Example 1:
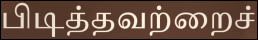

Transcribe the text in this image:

பிடித்தவற்றைச்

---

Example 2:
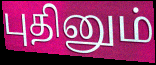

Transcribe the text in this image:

புதினும்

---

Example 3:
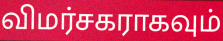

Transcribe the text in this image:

விமர்சகராகவும்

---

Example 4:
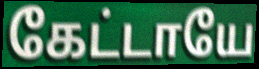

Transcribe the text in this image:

கேட்டாயே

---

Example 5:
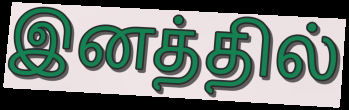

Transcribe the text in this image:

இனத்தில்